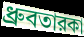
ধ্রুবতারকা